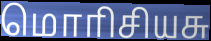
மொரிசியசு